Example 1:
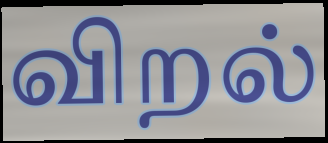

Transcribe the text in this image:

விறல்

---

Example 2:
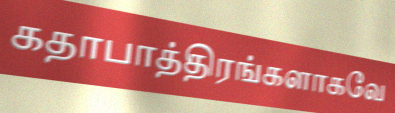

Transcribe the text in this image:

கதாபாத்திரங்களாகவே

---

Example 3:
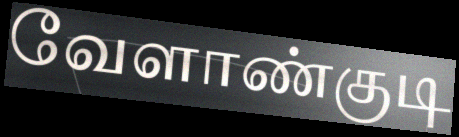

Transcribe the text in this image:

வேளாண்குடி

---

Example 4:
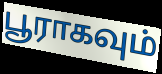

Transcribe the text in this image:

பூராகவும்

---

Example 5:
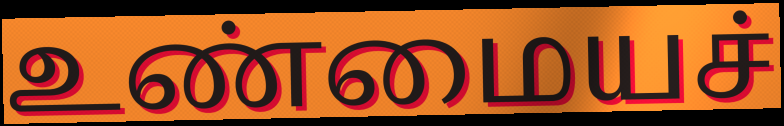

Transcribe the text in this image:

உண்மையச்